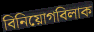
বিনিয়োগবিলাক